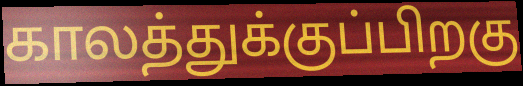
காலத்துக்குப்பிறகு